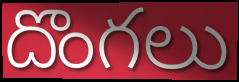
దొంగలు